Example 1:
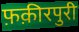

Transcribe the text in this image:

फ़क़ीरपुरी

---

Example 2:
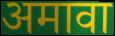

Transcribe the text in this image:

अमावा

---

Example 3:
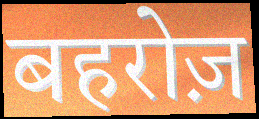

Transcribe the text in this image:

बहरोज़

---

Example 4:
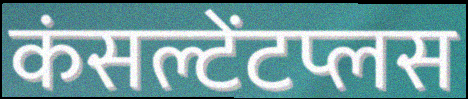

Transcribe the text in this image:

कंसल्टेंटप्लस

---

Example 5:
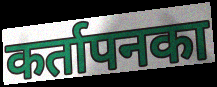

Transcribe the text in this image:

कर्तापनका